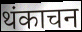
थंकाचन